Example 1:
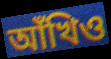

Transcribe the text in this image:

আঁখিও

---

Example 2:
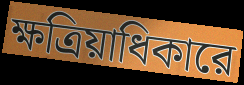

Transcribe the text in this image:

ক্ষত্রিয়াধিকারে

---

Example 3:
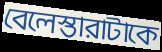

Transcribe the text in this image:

বেলেস্তারাটাকে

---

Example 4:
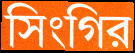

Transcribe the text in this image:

সিংগির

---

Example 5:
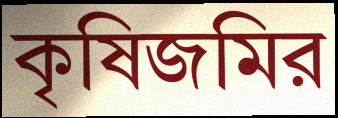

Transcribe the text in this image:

কৃষিজমির